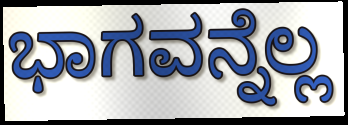
ಭಾಗವನ್ನೆಲ್ಲ